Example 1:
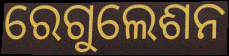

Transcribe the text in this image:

ରେଗୁଲେଶନ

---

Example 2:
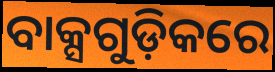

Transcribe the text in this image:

ବାକ୍ସଗୁଡ଼ିକରେ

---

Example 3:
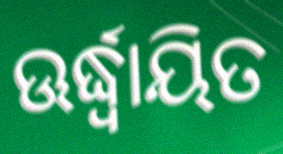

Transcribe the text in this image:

ଊର୍ଦ୍ଧ୍ୱାୟିତ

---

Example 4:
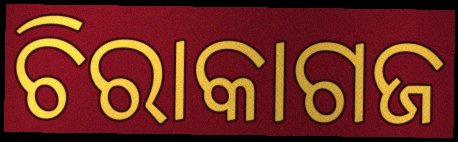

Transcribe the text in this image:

ଚିରାକାଗଜ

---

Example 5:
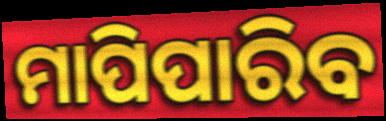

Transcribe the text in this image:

ମାପିପାରିବ